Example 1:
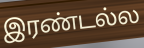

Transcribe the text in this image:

இரண்டல்ல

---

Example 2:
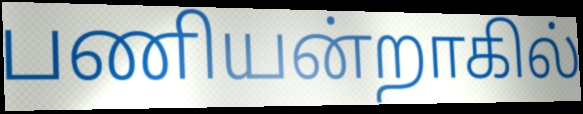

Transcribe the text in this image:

பணியன்றாகில்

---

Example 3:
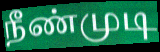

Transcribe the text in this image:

நீண்முடி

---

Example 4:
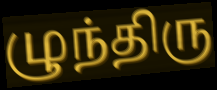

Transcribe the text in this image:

ழுந்திரு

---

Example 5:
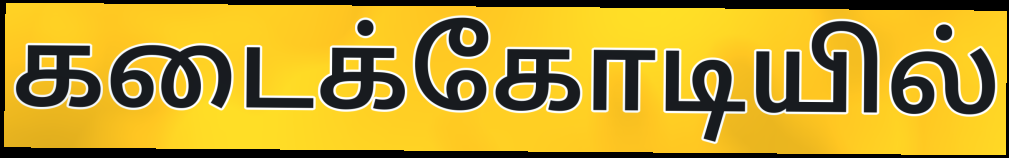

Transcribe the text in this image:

கடைக்கோடியில்